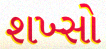
શખ્સો